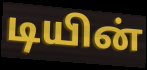
டியின்